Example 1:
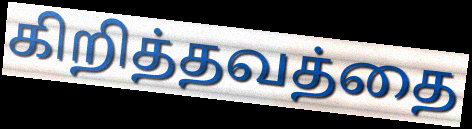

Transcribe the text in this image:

கிறித்தவத்தை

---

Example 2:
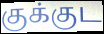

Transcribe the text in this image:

குக்குட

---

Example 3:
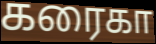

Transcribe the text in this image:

கரைகா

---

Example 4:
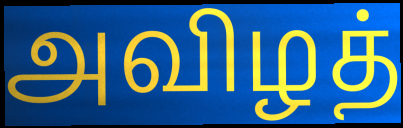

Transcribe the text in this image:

அவிழத்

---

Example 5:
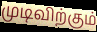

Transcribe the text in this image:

முடிவிற்கும்